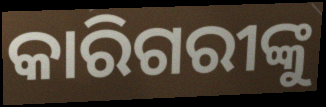
କାରିଗରୀଙ୍କୁ